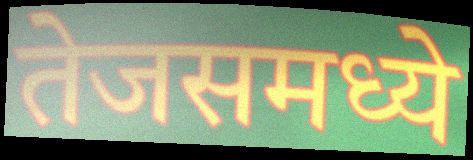
तेजसमध्ये